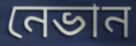
নেভান